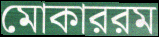
মোকাররম